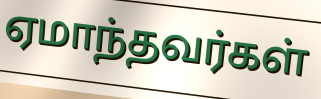
ஏமாந்தவர்கள்